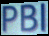
PBI